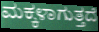
ಮಕ್ಕಳಾಗುತ್ತದೆ